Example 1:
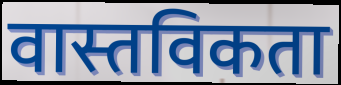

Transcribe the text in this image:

वास्तविकता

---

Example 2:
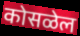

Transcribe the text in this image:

कोसळेल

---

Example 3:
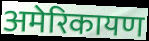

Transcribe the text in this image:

अमेरिकायण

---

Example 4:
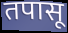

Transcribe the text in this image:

तपासू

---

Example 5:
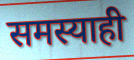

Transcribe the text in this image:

समस्याही